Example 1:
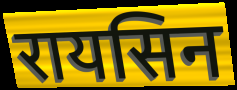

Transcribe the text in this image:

रायसिन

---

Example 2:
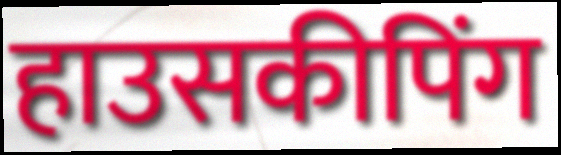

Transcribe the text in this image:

हाउसकीपिंग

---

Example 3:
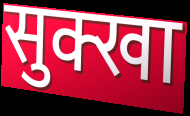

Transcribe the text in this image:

सुक्खा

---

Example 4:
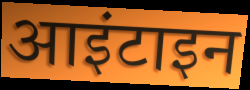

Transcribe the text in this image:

आइंटाइन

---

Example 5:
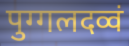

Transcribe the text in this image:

पुग्गलदव्वं